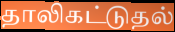
தாலிகட்டுதல்